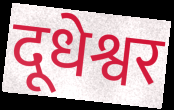
दूधेश्वर